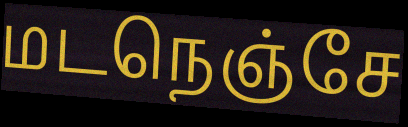
மடநெஞ்சே